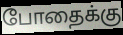
போதைக்கு